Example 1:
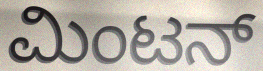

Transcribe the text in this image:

ಮಿಂಟನ್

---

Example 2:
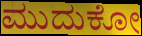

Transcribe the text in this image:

ಮುದುಕೋ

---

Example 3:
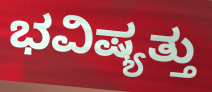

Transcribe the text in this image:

ಭವಿಷ್ಯತ್ತು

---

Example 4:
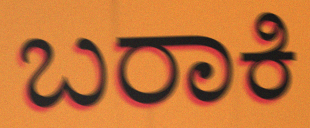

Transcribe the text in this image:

ಬರಾಕಿ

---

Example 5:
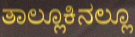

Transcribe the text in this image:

ತಾಲ್ಲೂಕಿನಲ್ಲೂ